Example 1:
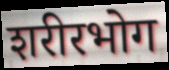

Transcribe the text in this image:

शरीरभोग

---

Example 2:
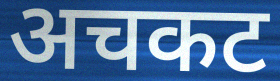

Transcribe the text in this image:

अचकट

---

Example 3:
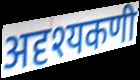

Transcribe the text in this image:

अदृश्यकणी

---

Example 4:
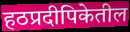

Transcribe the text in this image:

हठप्रदीपिकेतील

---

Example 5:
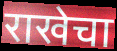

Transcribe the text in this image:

राखेचा